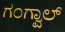
ಗಂಗ್ವಾಲ್